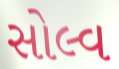
સોલ્વ